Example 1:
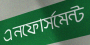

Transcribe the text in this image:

এনফোর্সমেন্ট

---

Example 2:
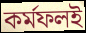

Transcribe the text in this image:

কর্মফলই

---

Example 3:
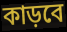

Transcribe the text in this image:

কাড়বে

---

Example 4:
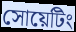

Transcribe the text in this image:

সোয়েটিং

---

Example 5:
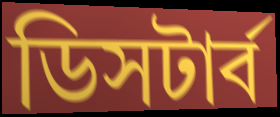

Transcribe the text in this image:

ডিসটার্ব